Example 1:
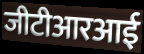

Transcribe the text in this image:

जीटीआरआई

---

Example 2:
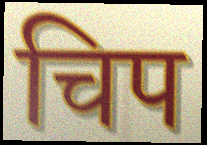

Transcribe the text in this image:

चिप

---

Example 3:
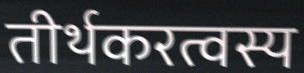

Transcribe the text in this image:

तीर्थकरत्वस्य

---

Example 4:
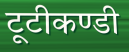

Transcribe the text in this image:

टूटीकण्डी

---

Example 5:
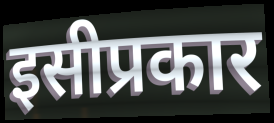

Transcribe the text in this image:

इसीप्रकार